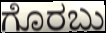
ಗೊರಬು